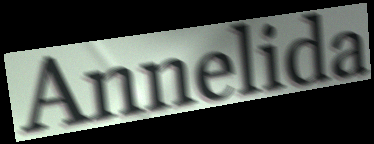
Annelida